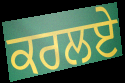
ਕਰਲਏ